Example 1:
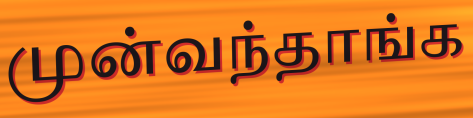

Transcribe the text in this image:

முன்வந்தாங்க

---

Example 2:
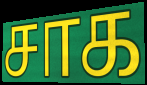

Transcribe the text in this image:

சாக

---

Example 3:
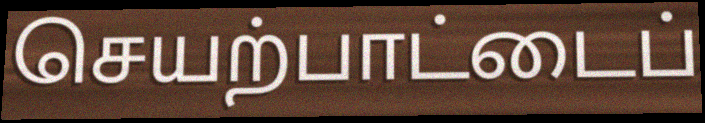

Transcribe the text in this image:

செயற்பாட்டைப்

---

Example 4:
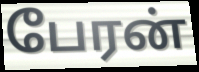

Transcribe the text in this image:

பேரன்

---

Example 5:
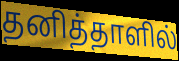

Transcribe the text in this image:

தனித்தாளில்